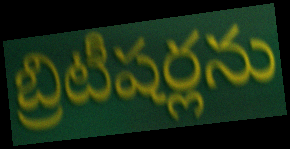
బ్రిటీషర్లను